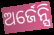
ଅର୍ଜେନ୍ସି